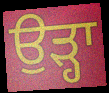
ਉੜ੍ਹਾ